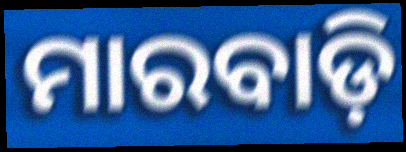
ମାରବାଡ଼ି